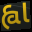
હ્વા